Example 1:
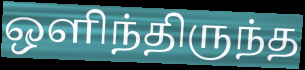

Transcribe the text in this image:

ஒளிந்திருந்த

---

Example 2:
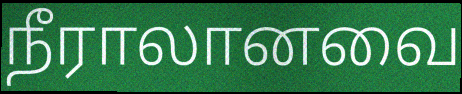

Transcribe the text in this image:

நீராலானவை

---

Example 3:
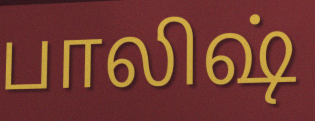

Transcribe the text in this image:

பாலிஷ்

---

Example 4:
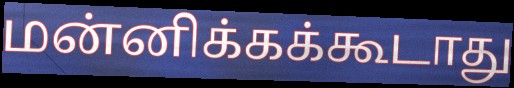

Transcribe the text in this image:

மன்னிக்கக்கூடாது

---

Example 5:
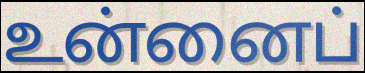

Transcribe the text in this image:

உன்னைப்